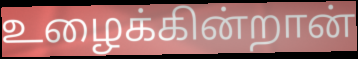
உழைக்கின்றான்